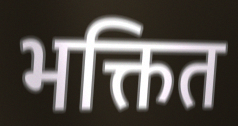
भक्तित